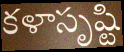
కళాసృష్టి